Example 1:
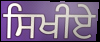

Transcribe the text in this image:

ਸਿਖੀਏ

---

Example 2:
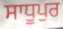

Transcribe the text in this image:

ਸਾਧੂਪੁਰ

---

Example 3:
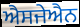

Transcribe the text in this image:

ਐਸਜੇਐਨ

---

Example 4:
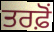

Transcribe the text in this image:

ਤਰਫ਼ੋਂ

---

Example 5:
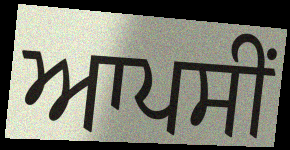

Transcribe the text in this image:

ਆਪਸੀਂ